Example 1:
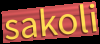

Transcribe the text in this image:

sakoli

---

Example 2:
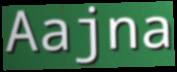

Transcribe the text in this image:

Aajna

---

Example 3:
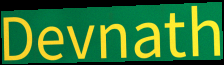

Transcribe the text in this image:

Devnath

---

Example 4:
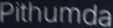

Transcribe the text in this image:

Pithumda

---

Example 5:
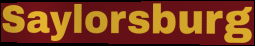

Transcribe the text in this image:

Saylorsburg